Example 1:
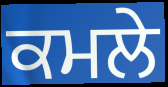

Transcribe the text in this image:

ਕਮਲੇ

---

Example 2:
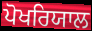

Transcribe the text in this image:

ਪੋਖਰਿਯਾਲ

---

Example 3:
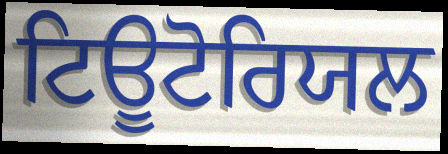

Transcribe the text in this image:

ਟਿਊਟੋਰਿਯਲ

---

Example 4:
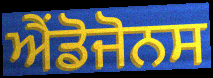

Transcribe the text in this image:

ਐਂਡੋਜੋਨਸ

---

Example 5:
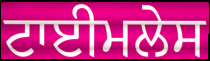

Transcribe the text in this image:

ਟਾਈਮਲੇਸ